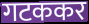
गटककर